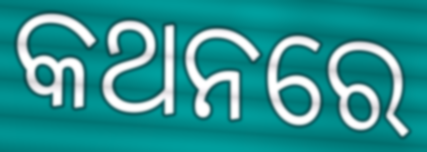
କଥନରେ